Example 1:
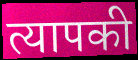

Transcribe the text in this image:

त्यापकी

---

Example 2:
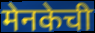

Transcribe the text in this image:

मेनकेची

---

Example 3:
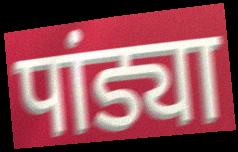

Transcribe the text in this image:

पांड्या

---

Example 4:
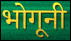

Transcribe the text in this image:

भोगूनी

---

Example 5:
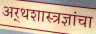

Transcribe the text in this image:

अर्थशास्त्रज्ञांचा